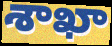
శాఖా